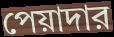
পেয়াদার